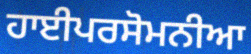
ਹਾਈਪਰਸੋਮਨੀਆ